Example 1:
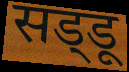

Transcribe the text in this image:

सड्‌डू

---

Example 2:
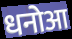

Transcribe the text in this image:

धनोआ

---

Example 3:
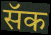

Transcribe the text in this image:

सॅक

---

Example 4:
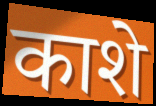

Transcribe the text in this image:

काशे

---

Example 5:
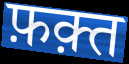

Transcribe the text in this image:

फ़क़्त